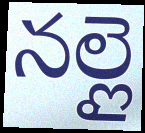
నల్లై